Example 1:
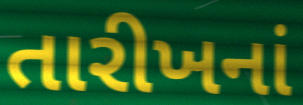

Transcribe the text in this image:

તારીખનાં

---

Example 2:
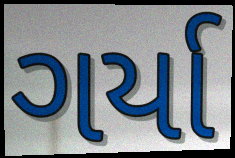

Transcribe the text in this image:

ગર્યા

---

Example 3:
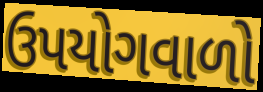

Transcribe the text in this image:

ઉપયોગવાળો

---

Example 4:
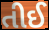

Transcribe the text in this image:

તીઈ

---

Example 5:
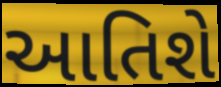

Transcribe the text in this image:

આતિશે